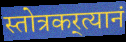
स्तोत्रकर्त्यानं